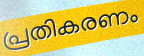
പ്രതികരണം